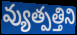
వ్యుత్పత్తిని